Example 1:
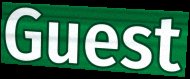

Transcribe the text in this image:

Guest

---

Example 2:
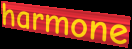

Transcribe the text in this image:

harmone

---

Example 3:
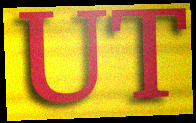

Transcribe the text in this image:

UT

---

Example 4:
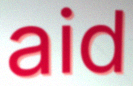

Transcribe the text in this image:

aid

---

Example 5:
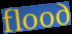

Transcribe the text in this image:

flood